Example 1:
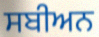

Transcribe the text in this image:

ਸਬੀਅਨ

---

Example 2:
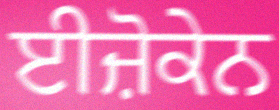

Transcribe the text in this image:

ਈਜ਼ੋਕੇਨ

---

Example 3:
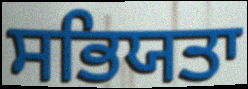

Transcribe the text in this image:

ਸਭਿਯਤਾ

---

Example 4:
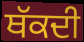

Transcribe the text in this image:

ਥੱਕਦੀ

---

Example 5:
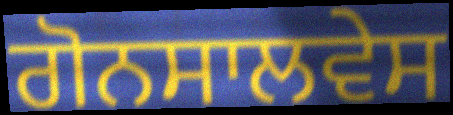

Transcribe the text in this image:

ਗੋਨਸਾਲਵੇਸ